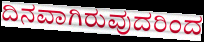
ದಿನವಾಗಿರುವುದರಿಂದ